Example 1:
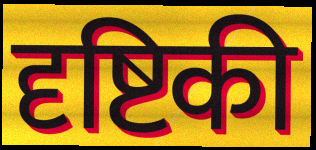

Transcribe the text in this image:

दृष्टिकी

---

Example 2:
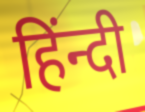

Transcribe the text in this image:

हिंन्दी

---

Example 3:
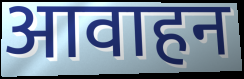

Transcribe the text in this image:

आवाहन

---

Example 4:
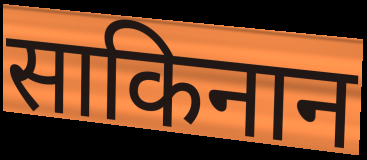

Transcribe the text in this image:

साकिनान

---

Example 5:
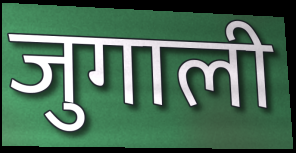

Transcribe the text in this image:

जुगाली